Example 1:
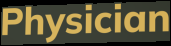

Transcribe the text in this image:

Physician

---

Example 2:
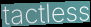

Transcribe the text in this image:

tactless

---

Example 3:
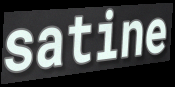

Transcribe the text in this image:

satine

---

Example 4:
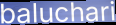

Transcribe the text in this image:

baluchari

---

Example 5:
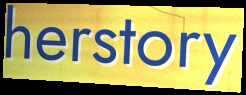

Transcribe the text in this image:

herstory